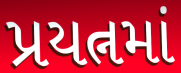
પ્રયત્નમાં